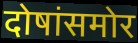
दोषांसमोर